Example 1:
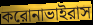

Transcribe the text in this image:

করোনাভাইরাস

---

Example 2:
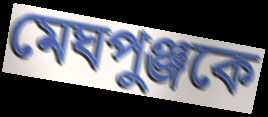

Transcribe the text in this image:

মেঘপুঞ্জকে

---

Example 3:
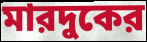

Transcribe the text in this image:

মারদুকের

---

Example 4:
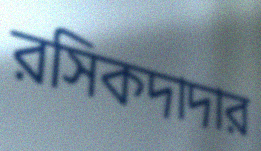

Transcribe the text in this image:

রসিকদাদার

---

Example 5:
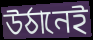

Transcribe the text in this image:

উঠানেই